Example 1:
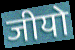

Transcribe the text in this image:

जीयो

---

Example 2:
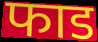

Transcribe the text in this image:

फाड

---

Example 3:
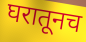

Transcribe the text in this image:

घरातूनच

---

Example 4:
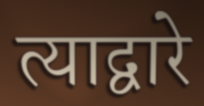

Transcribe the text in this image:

त्याद्वारे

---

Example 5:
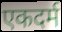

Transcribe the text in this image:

एकदर्म